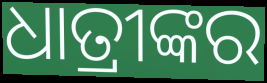
ଧାତ୍ରୀଙ୍କର